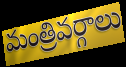
మంత్రివర్గాలు